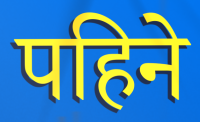
पहिने